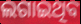
ଲଗାଇଥିବ